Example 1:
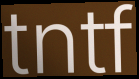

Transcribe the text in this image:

tntf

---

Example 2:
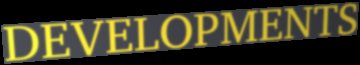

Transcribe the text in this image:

DEVELOPMENTS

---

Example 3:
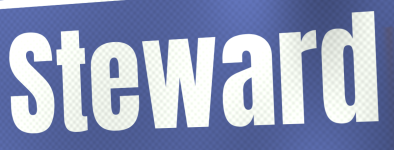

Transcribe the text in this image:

Steward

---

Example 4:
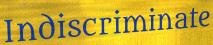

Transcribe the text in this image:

Indiscriminate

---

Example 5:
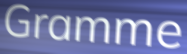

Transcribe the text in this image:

Gramme